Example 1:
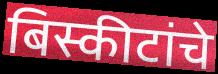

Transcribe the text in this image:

बिस्कीटांचे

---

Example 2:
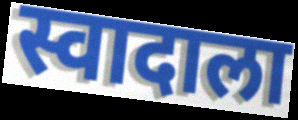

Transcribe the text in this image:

स्वादाला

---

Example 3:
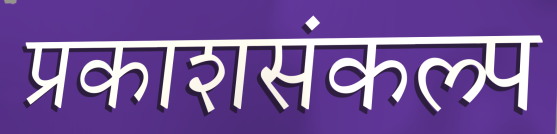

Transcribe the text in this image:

प्रकाशसंकल्प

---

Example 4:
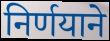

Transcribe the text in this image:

निर्णयाने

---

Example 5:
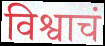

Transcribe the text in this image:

विश्वाचं